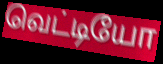
வெட்டியோ